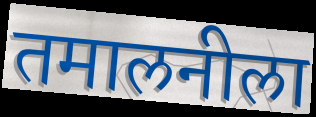
तमालनीला